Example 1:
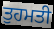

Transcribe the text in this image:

ਤੁਹਮਤੀ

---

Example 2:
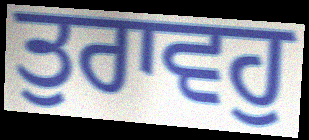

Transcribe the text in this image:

ਤੁਰਾਵਹੁ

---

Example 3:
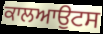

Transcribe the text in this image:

ਕਾਲਆਉਟਸ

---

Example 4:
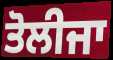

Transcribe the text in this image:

ਤੋਲੀਜਾ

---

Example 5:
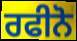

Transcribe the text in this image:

ਰਫੀਨੋ